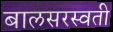
बालसरस्वती